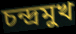
চন্দ্রমুখ